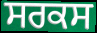
ਸਰਕਸ